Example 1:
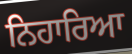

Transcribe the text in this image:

ਨਿਹਾਰਿਆ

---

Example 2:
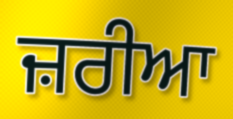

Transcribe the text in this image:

ਜ਼ਰੀਆ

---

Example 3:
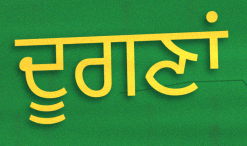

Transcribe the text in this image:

ਦੂਗਣਾਂ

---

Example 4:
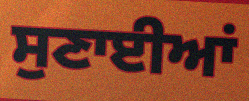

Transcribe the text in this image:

ਸੁਣਾਈਆਂ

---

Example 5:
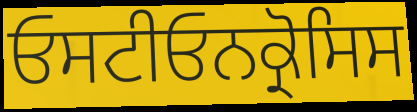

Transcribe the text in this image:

ਓਸਟੀਓਨਕ੍ਰੋਸਿਸ